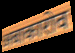
अबाकारोव